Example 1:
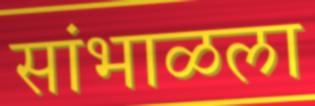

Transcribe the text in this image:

सांभाळला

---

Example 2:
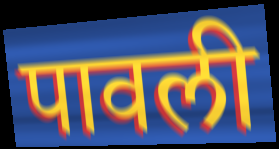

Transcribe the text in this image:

पावली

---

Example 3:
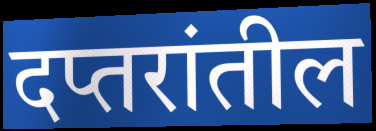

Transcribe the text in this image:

दप्तरांतील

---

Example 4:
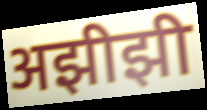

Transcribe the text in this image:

अझीझी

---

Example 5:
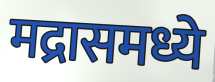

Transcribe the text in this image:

मद्रासमध्ये